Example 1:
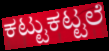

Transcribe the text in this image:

ಕಟ್ಟುಕಟ್ಟಲೆ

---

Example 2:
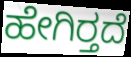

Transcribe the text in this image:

ಹೇಗಿರ್‍ತದೆ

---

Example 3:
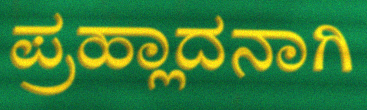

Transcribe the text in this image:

ಪ್ರಹ್ಲಾದನಾಗಿ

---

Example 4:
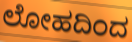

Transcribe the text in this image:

ಲೋಹದಿಂದ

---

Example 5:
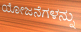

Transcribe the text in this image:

ಯೋಜನೆಗಳನ್ನು